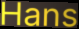
Hans